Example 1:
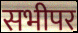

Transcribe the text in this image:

सभीपर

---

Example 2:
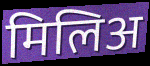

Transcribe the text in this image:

मिलिअ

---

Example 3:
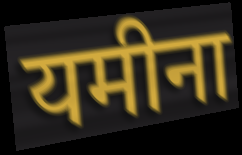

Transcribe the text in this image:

यमीना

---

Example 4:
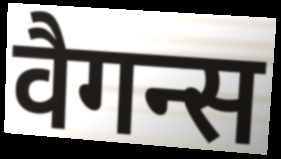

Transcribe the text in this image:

वैगन्स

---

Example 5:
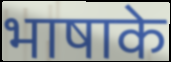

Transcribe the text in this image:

भाषाके